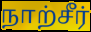
நாற்சீர்